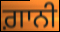
ਗ਼ਾਨੀ